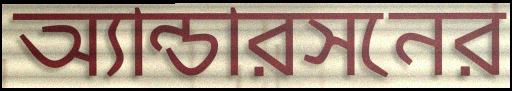
অ্যান্ডারসনের